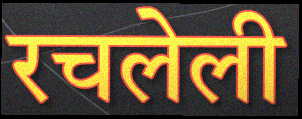
रचलेली